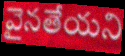
వైనతేయని